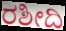
ರಶೀದಿ